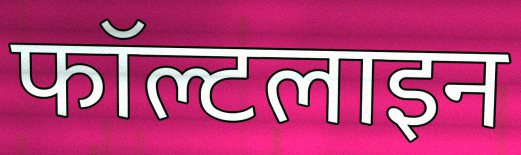
फॉल्टलाइन